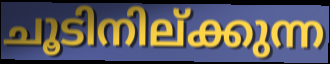
ചൂടിനില്ക്കുന്ന